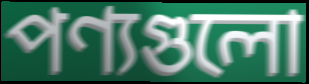
পণ্যগুলো